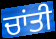
ਚਾਂਤੀ